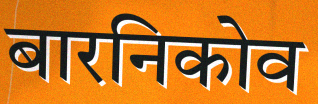
बारनिकोव